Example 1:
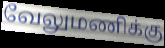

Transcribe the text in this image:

வேலுமணிக்கு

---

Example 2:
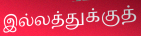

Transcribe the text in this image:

இல்லத்துக்குத்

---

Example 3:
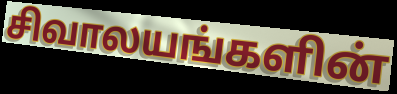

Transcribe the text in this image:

சிவாலயங்களின்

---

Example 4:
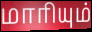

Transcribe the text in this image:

மாரியும்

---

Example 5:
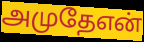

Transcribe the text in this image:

அமுதேஎன்